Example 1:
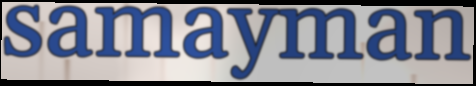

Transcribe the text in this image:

samayman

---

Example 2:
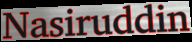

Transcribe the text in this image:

Nasiruddin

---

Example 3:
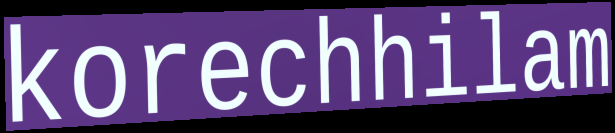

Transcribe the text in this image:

korechhilam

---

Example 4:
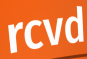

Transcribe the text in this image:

rcvd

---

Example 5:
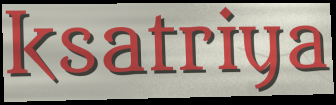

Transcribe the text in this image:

ksatriya